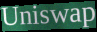
Uniswap